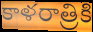
కాళరాత్రికి